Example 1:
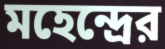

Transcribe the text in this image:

মহেন্দ্রের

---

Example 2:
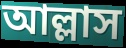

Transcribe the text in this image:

আল্লাস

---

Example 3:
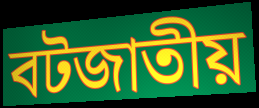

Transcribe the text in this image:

বটজাতীয়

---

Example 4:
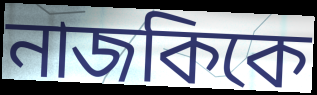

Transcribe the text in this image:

নাজকিকে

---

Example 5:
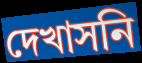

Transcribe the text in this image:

দেখাসনি